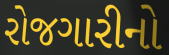
રોજગારીનો